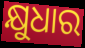
କ୍ଷୁଧାର